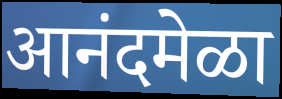
आनंदमेळा